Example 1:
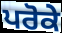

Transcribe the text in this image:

ਪਰੋਕੇ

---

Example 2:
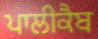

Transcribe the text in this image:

ਪਾਲੀਕੈਬ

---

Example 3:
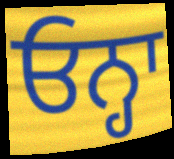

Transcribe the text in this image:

ਓਨ੍ਹਾ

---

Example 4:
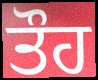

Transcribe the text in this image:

ਤੌਹ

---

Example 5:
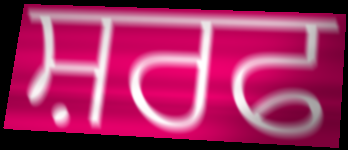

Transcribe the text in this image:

ਸ਼ਰਫ